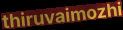
thiruvaimozhi